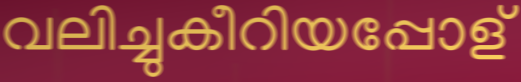
വലിച്ചുകീറിയപ്പോള്